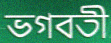
ভগবতী